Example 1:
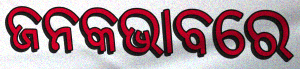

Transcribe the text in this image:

ଜନକଭାବରେ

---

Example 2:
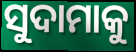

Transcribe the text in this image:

ସୁଦାମାକୁ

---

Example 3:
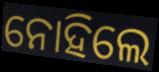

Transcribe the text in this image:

ନୋହିଲେ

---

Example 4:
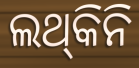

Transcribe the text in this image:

ଲଥ୍‌କିନି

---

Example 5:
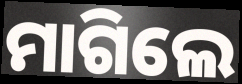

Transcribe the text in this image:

ମାଗିଲେ